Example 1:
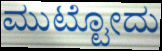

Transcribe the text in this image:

ಮುಟ್ಟೋದು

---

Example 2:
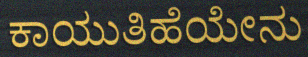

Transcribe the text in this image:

ಕಾಯುತಿಹೆಯೇನು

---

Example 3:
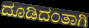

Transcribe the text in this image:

ದೂಡಿದಂತಾಗಿ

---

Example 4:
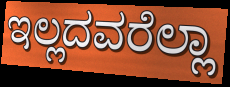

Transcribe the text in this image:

ಇಲ್ಲದವರೆಲ್ಲಾ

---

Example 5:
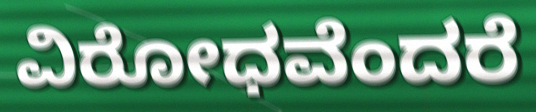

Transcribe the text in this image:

ವಿರೋಧವೆಂದರೆ